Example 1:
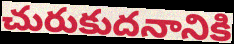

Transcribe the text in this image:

చురుకుదనానికి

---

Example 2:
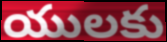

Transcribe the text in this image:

యులకు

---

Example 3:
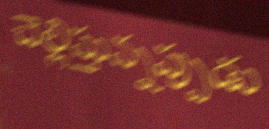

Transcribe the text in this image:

చెల్లిస్తున్నప్పుడు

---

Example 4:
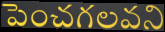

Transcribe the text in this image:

పెంచగలవని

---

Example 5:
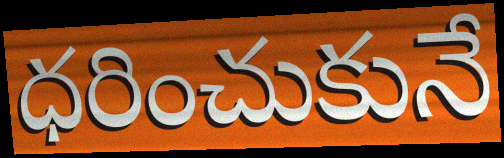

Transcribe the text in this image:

ధరించుకునే